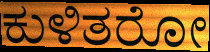
ಕುಳಿತರೋ